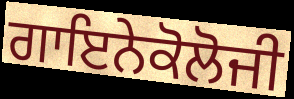
ਗਾਇਨੇਕੋਲੋਜੀ